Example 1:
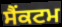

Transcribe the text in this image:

ਸੈੰਕਟਮ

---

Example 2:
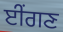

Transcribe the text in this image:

ਈਂਗਣ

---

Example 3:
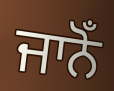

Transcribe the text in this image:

ਜਾਨੋਁ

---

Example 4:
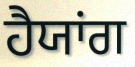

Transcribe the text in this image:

ਹੈਯਾਂਗ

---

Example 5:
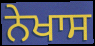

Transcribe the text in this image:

ਨੇਖਾਸ